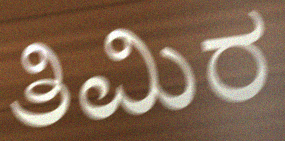
ತಿಮಿರ